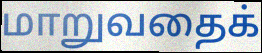
மாறுவதைக்